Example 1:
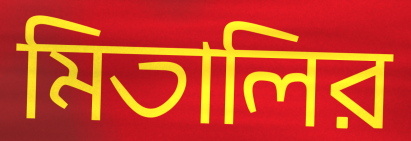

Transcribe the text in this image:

মিতালির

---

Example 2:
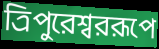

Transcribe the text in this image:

ত্রিপুরেশ্বররূপে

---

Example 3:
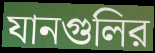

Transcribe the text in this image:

যানগুলির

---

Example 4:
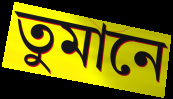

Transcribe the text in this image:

তুমানে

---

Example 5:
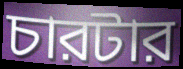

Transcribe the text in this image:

চারটার